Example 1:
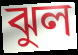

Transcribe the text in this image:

ঝুল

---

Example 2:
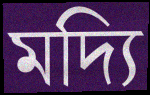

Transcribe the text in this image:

মদ্যি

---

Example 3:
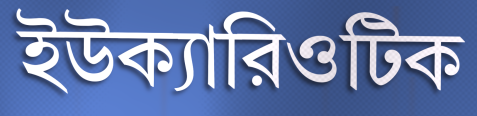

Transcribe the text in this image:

ইউক্যারিওটিক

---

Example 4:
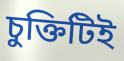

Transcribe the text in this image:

চুক্তিটিই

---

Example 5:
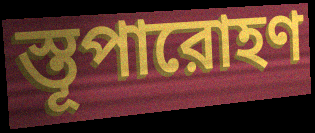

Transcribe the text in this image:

স্তূপারোহণ